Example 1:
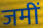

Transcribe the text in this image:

जमीं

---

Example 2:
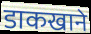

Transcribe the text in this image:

डाकखाने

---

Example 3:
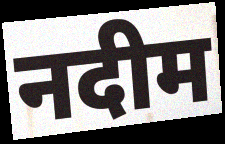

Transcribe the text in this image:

नदीम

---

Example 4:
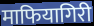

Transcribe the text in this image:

माफियागिरी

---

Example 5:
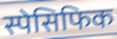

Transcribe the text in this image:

स्पेसिफिक